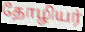
தோழியர்